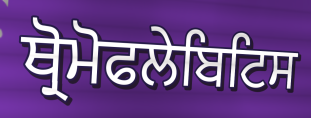
ਥ੍ਰੋਮੋਫਲੇਬਿਟਿਸ